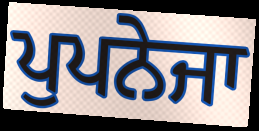
ਪੁਪਨੇਜਾ